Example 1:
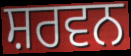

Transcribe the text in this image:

ਸ਼ਰਵਨ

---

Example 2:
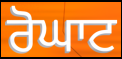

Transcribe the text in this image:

ਰੋਘਾਟ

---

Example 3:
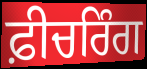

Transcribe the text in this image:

ਫ਼ੀਚਰਿੰਗ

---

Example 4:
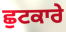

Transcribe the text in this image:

ਛੁਟਕਾਰੇ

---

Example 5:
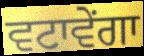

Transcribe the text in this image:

ਵਟਾਵੇਂਗਾ